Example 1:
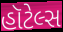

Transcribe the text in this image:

હૉટેલ્સ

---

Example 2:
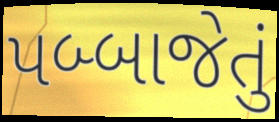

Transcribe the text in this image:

પબ્બાજેતું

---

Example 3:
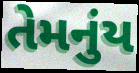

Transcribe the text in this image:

તેમનુંય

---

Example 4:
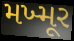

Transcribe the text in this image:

મખ્મૂર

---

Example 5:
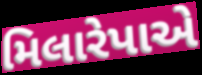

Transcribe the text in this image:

મિલારેપાએ